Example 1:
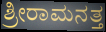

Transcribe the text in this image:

ಶ್ರೀರಾಮನತ್ತ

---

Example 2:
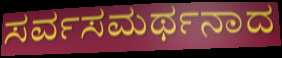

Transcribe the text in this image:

ಸರ್ವಸಮರ್ಥನಾದ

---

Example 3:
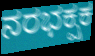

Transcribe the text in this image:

ನರಭಕ್ಷಕ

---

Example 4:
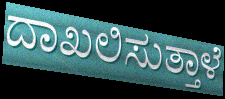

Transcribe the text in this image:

ದಾಖಲಿಸುತ್ತಾಳೆ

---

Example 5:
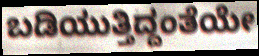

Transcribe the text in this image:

ಬಡಿಯುತ್ತಿದ್ದಂತೆಯೇ